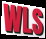
WLS